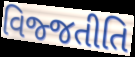
વિજ્જતીતિ